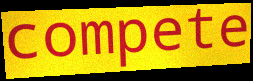
compete